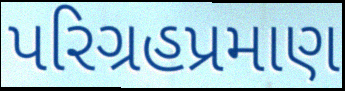
પરિગ્રહપ્રમાણ